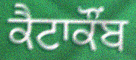
ਕੈਟਾਕੌਂਬ